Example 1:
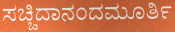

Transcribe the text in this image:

ಸಚ್ಚಿದಾನಂದಮೂರ್ತಿ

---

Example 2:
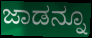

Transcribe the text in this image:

ಜಾಡನ್ನೂ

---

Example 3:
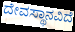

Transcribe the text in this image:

ದೇವಸ್ಥಾನವಿದೆ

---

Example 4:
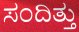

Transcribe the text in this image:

ಸಂದಿತ್ತು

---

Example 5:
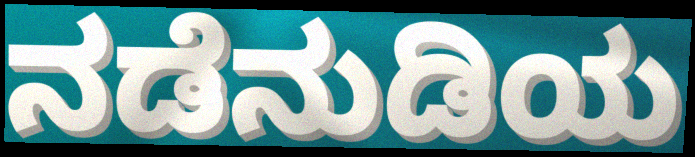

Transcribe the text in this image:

ನಡೆನುಡಿಯ